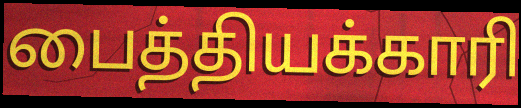
பைத்தியக்காரி